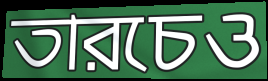
তারচেও